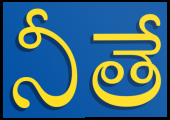
నీతే